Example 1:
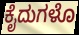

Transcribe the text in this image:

ಕೈದುಗಳೊ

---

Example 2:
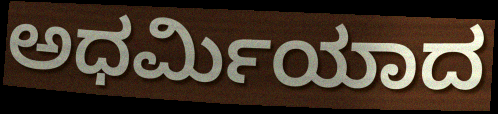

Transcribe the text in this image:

ಅಧರ್ಮಿಯಾದ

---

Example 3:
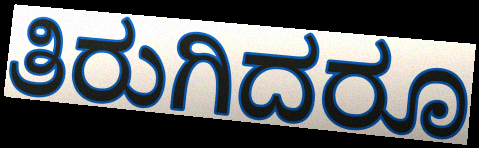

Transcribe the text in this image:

ತಿರುಗಿದರೂ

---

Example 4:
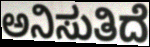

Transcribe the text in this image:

ಅನಿಸುತಿದೆ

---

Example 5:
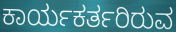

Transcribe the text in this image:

ಕಾರ್ಯಕರ್ತರಿರುವ